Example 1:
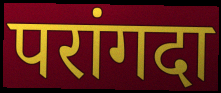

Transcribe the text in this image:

परांगदा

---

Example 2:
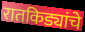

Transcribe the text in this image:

रातकिड्यांचे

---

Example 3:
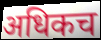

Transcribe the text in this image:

अधिकच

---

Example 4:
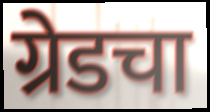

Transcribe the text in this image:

ग्रेडचा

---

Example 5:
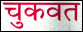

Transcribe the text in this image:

चुकवत